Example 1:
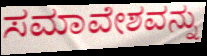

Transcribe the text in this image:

ಸಮಾವೇಶವನ್ನು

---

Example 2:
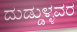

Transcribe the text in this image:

ದುಡ್ಡುಳ್ಳವರ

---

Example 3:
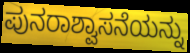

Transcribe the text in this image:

ಪುನರಾಶ್ವಾಸನೆಯನ್ನು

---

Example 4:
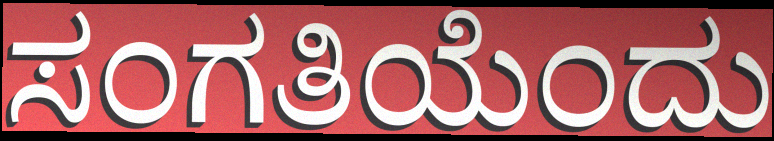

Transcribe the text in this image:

ಸಂಗತಿಯೆಂದು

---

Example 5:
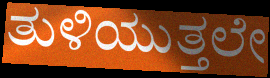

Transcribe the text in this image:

ತುಳಿಯುತ್ತಲೇ